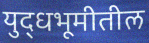
युद्धभूमीतील